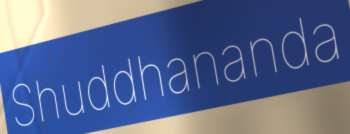
Shuddhananda